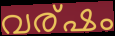
വര്ഷം